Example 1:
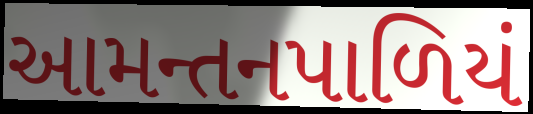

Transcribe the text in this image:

આમન્તનપાળિયં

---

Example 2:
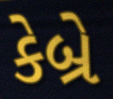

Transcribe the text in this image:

કેબ્રે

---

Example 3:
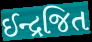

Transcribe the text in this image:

ઈન્દ્રજિત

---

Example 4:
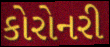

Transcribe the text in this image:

કોરોનરી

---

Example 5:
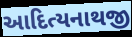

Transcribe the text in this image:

આદિત્યનાથજી